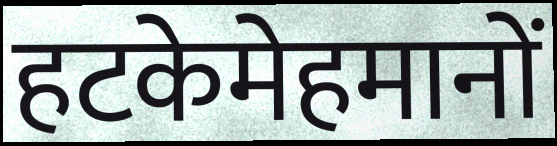
हटकेमेहमानों